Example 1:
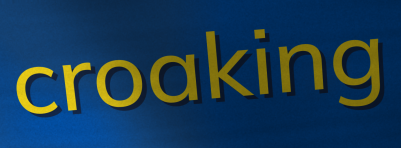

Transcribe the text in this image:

croaking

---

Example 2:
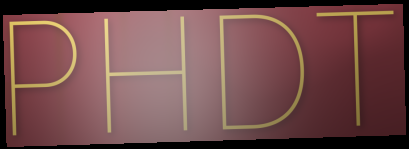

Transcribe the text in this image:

PHDT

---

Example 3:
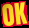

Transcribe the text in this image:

OK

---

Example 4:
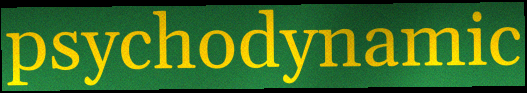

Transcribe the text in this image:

psychodynamic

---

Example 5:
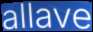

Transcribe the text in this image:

allave